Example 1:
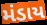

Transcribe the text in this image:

મંડાય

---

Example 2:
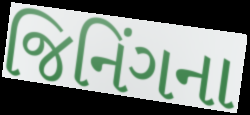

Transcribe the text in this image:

જિનિંગના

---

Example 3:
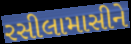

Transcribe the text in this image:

રસીલામાસીને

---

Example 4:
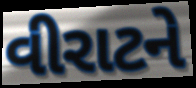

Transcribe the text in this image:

વીરાટને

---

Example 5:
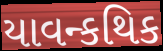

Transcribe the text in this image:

યાવન્કથિક